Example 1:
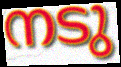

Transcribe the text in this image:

നടു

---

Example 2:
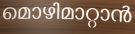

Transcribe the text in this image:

മൊഴിമാറ്റാൻ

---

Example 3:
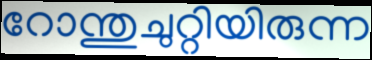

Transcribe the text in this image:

റോന്തുചുറ്റിയിരുന്ന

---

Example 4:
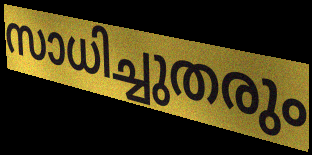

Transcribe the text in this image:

സാധിച്ചുതരും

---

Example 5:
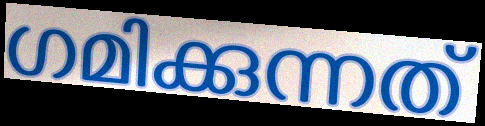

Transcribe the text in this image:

ഗമിക്കുന്നത്